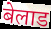
बेलाड